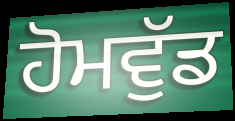
ਹੋਮਵੁੱਡ